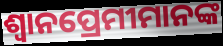
ଶ୍ଵାନପ୍ରେମୀମାନଙ୍କ